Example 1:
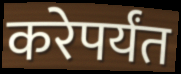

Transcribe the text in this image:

करेपर्यंत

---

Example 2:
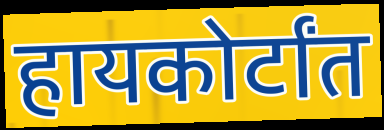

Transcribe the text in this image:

हायकोर्टांत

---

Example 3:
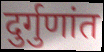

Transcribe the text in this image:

दुर्गुणांत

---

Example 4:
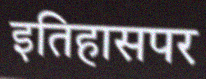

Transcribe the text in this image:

इतिहासपर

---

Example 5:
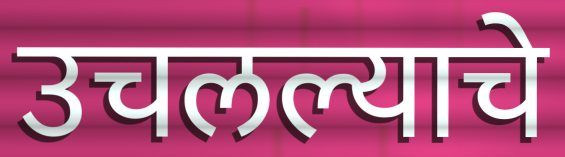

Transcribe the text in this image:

उचलल्याचे